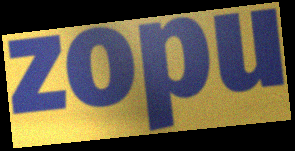
zopu